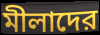
মীলাদের